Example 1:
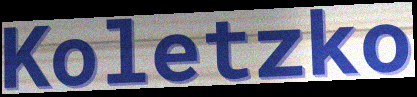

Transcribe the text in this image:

Koletzko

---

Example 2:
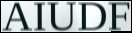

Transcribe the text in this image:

AIUDF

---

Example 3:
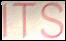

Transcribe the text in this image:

ITS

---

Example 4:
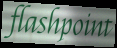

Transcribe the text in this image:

flashpoint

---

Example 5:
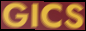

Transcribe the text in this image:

GICS